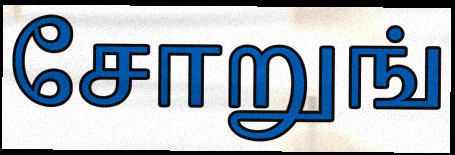
சோறுங்